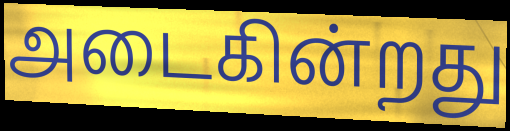
அடைகின்றது